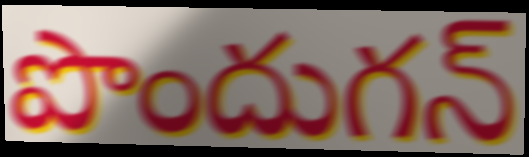
పొందుగన్